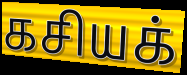
கசியக்